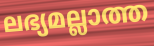
ലഭ്യമല്ലാത്ത